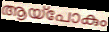
ആയ്പോകും